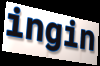
ingin